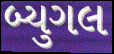
બ્યુગલ